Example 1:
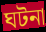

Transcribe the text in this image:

ঘটনা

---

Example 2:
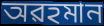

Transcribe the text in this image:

অৱহমান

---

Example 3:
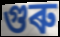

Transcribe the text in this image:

গুৰু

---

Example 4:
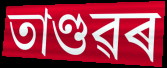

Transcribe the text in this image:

তাণ্ডৱৰ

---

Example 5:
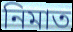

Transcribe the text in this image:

নিমাত